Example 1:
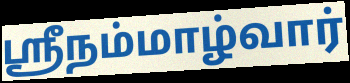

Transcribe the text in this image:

ஸ்ரீநம்மாழ்வார்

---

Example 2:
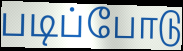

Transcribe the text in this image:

படிப்போடு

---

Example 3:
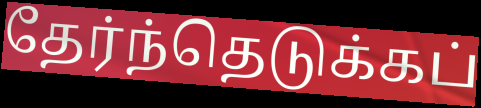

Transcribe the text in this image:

தேர்ந்தெடுக்கப்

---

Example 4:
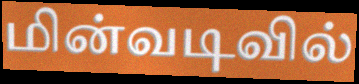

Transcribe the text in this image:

மின்வடிவில்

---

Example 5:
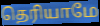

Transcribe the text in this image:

தெரியாமே